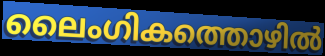
ലൈംഗികത്തൊഴിൽ